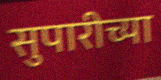
सुपारीच्या